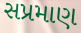
સપ્રમાણ